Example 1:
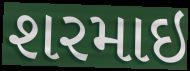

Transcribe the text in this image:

શરમાઇ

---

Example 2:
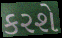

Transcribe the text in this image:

કરશે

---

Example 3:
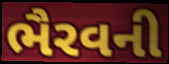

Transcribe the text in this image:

ભૈરવની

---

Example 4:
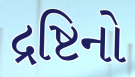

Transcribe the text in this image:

દ્રષ્ટિનો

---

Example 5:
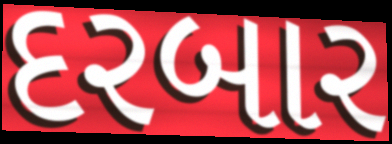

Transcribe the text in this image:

દરબાર